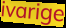
ivarige